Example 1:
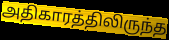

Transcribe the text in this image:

அதிகாரத்திலிருந்த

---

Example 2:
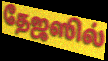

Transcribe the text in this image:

தேஜஸில்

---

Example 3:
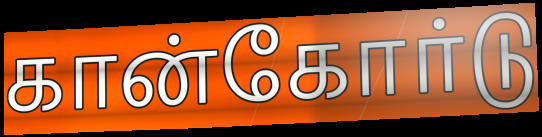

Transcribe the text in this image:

கான்கோர்டு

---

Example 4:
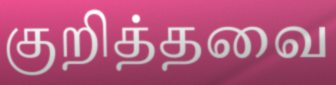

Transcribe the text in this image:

குறித்தவை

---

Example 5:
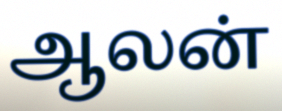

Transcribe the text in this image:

ஆலன்